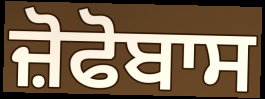
ਜ਼ੋਫੋਬਾਸ